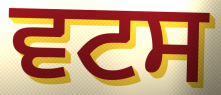
ਵਟਸ